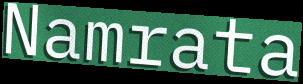
Namrata